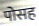
पोसह